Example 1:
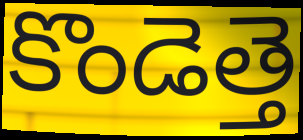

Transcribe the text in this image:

కొండెత్తె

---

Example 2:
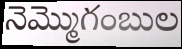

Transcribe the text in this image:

నెమ్మొగంబుల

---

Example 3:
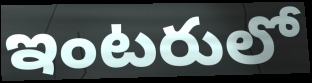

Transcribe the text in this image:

ఇంటరులో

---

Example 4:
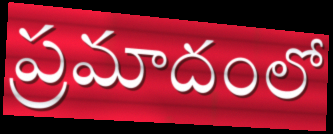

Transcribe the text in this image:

ప్రమాదంలో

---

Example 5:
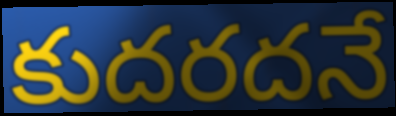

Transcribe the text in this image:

కుదరదనే